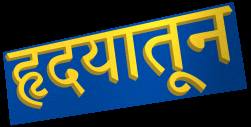
हृदयातून